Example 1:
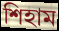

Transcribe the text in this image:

শিহাম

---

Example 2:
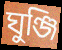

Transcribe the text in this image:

ঘুঞ্জি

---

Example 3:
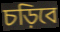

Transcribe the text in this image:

চড়িবে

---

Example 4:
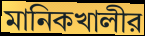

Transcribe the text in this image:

মানিকখালীর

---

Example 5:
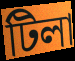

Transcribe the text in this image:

টিলা